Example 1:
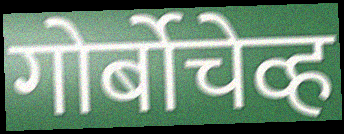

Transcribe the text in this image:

गोर्बोचेव्ह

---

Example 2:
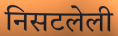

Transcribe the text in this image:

निसटलेली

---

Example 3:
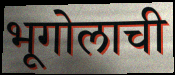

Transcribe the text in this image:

भूगोलाची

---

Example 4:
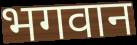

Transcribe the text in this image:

भगवान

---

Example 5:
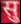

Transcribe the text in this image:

सु